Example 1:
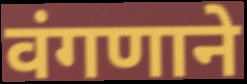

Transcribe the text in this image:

वंगणाने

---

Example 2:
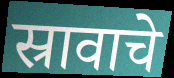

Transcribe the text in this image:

स्रावाचे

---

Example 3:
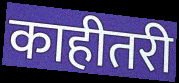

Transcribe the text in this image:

काहीतरी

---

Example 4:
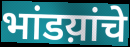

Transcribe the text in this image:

भांडय़ांचे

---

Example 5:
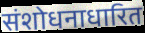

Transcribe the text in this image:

संशोधनाधारित